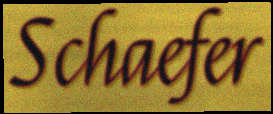
Schaefer